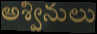
అశ్వినులు